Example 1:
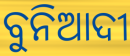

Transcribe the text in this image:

ବୁନିଆଦୀ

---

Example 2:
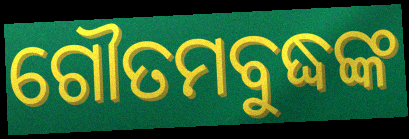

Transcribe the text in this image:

ଗୌତମବୁଦ୍ଧଙ୍କ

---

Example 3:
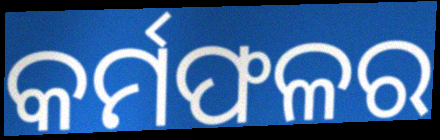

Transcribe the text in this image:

କର୍ମଫଳର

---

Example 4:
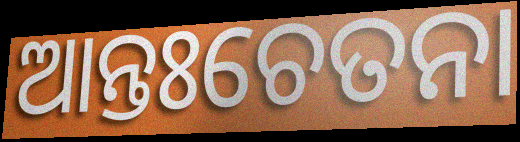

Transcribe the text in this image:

ଆନ୍ତଃଚେତନା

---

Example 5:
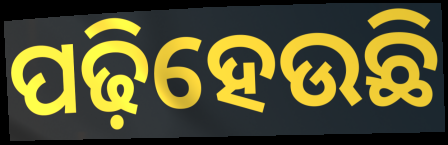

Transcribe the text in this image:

ପଢ଼ିହେଉଛି